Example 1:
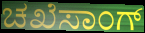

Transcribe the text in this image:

ಚಖೆಸಾಂಗ್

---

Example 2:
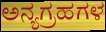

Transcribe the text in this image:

ಅನ್ಯಗ್ರಹಗಳ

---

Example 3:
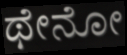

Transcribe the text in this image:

ಥೇನೋ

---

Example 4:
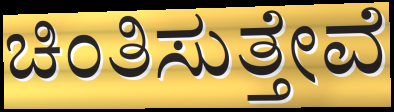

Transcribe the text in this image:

ಚಿಂತಿಸುತ್ತೇವೆ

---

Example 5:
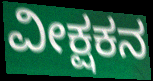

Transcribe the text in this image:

ವೀಕ್ಷಕನ